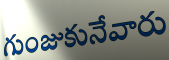
గుంజుకునేవారు